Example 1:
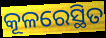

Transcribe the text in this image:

କୂଳରେସ୍ଥିତ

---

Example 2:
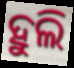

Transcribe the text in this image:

ହୁଲି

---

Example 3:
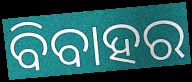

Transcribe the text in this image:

ବିବାହର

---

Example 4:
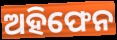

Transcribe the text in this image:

ଅହିଫେନ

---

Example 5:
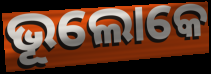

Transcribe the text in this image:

ଭୂଲୋକେ